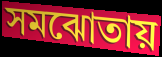
সমঝোতায়